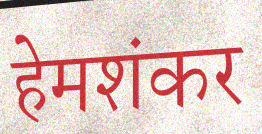
हेमशंकर